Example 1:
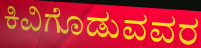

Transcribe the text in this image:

ಕಿವಿಗೊಡುವವರ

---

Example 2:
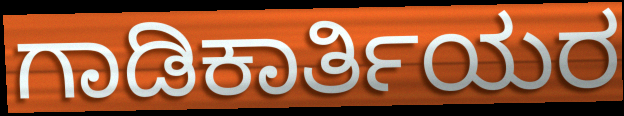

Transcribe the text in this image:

ಗಾಡಿಕಾರ್ತಿಯರ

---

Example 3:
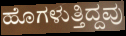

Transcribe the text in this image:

ಹೊಗಳುತ್ತಿದ್ದವು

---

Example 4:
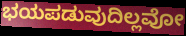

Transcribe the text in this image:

ಭಯಪಡುವುದಿಲ್ಲವೋ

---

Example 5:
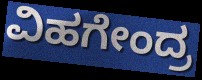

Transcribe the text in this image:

ವಿಹಗೇಂದ್ರ